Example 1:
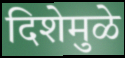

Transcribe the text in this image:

दिशेमुळे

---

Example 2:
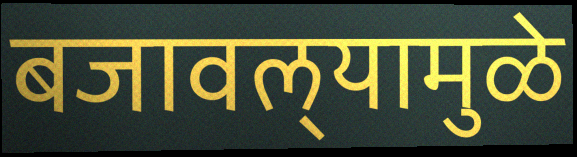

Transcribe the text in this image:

बजावल्यामुळे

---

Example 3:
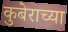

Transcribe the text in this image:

कुबेराच्या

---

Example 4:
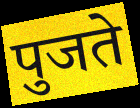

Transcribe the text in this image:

पुजते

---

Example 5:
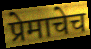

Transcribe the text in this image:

प्रेमाचेच